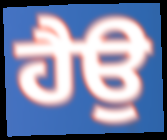
ਹੈਉ